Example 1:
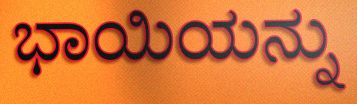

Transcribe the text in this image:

ಭಾಯಿಯನ್ನು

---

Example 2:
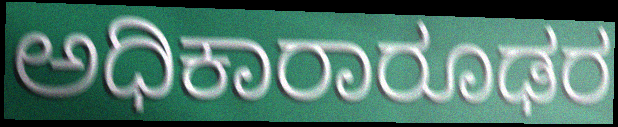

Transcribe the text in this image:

ಅಧಿಕಾರಾರೂಢರ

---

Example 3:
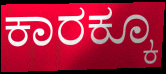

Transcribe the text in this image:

ಕಾರಕ್ಕೂ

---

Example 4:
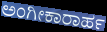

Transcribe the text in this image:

ಅಂಗೀಕಾರಾರ್ಹ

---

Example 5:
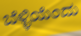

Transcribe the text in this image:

ಬೆಳ್ಳಿಯೆಂದು